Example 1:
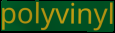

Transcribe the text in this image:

polyvinyl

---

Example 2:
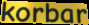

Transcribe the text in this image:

korbar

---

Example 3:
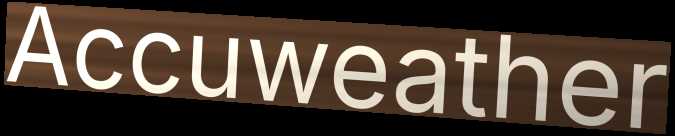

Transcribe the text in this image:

Accuweather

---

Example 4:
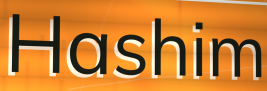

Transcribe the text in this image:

Hashim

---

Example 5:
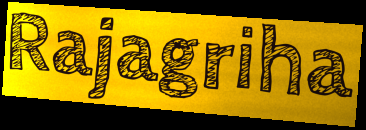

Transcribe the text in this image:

Rajagriha